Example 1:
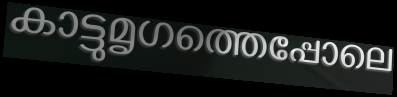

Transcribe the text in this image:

കാട്ടുമൃഗത്തെപ്പോലെ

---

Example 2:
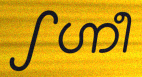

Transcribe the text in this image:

ഽഗ്നീ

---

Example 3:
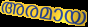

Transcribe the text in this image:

അരമായ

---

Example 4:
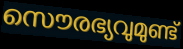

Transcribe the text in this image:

സൌരഭ്യവുമുണ്ട്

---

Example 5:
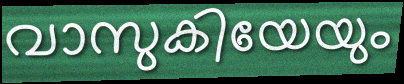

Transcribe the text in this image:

വാസുകിയേയും